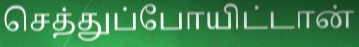
செத்துப்போயிட்டான்